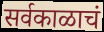
सर्वकाळाचं